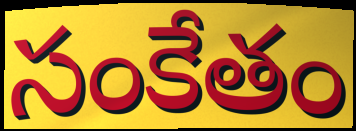
సంకేతం